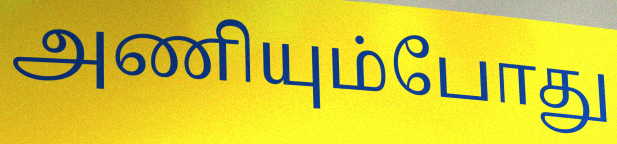
அணியும்போது